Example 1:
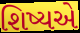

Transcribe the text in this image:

શિષ્યએ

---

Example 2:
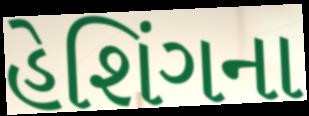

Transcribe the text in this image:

હેશિંગના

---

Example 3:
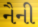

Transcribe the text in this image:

નૈની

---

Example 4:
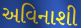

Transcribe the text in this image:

અવિનાશી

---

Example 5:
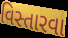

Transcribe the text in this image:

વિસ્તારવા